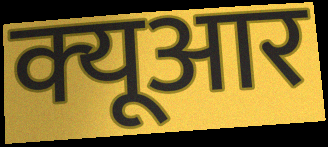
क्‍यूआर